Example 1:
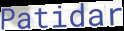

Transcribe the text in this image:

Patidar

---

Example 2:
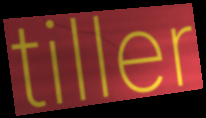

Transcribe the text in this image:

tiller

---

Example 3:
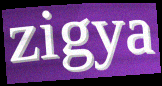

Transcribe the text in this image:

zigya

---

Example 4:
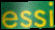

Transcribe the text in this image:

essi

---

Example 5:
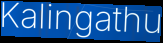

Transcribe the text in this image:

Kalingathu